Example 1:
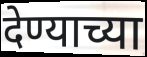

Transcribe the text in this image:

देण्याच्या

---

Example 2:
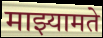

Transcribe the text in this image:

माझ्यामते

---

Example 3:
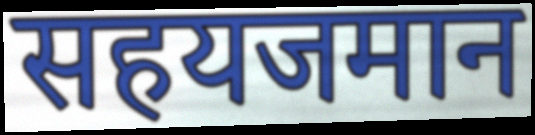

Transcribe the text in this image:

सहयजमान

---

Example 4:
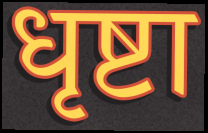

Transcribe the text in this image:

धृष्टा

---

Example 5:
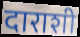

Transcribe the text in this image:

दाराशी